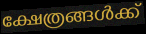
ക്ഷേത്രങ്ങൾക്ക്